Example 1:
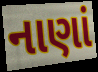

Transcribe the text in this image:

નાણાં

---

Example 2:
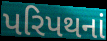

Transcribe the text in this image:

પરિપથનાં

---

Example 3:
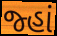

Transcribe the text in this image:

જ્હાં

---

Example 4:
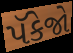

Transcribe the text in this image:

પૅકેજો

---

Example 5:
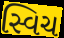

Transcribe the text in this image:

સ્વિચ